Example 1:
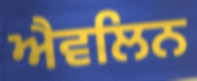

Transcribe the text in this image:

ਐਵਲਿਨ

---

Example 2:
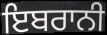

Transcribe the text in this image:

ਇਬਰਾਨੀ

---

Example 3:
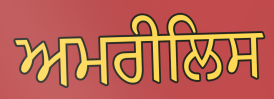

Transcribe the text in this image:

ਅਮਰੀਲਿਸ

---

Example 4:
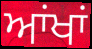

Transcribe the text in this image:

ਆਂਖਾਂ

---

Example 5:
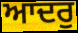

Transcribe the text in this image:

ਆਦਰੁ